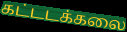
கட்டடக்கலை